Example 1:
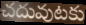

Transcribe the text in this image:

చదువుటకు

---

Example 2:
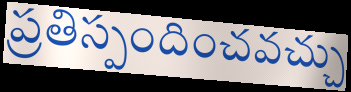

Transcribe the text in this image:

ప్రతిస్పందించవచ్చు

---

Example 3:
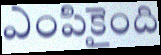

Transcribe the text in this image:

ఎంపికైంది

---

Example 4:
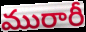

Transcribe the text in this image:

మురారీ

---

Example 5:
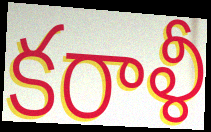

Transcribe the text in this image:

కరాళీ